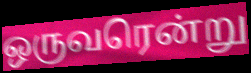
ஒருவரென்று